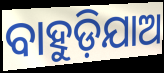
ବାହୁଡ଼ିଯାଅ